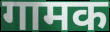
गामक